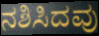
ನಶಿಸಿದವು